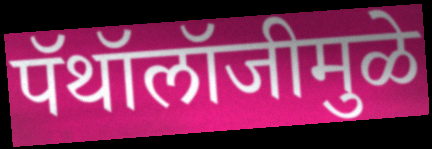
पॅथॉलॉजीमुळे